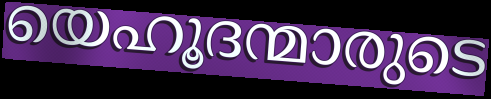
യെഹൂദന്മാരുടെ